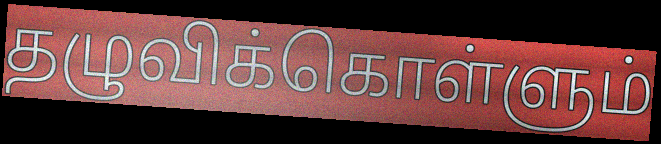
தழுவிக்கொள்ளும்